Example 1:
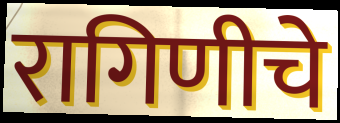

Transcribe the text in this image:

रागिणीचे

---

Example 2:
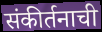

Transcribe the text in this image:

संकीर्तनाची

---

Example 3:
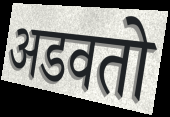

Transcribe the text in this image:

अडवतो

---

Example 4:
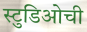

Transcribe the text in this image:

स्टुडिओची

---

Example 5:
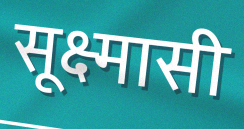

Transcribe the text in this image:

सूक्ष्मासी